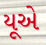
યૂએ